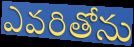
ఎవరితోను